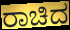
ರಾಚಿದ